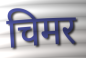
चिमर